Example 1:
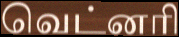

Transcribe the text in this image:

வெட்னரி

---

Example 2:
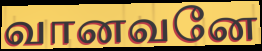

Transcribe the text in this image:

வானவனே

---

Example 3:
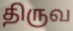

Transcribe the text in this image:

திருவ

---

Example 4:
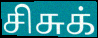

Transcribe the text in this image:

சிசுக்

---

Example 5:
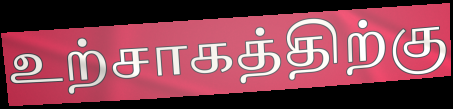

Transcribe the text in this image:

உற்சாகத்திற்கு